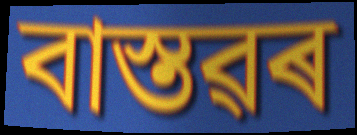
বাস্তৱৰ